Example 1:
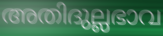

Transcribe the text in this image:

അതിദുല്ലഭാവ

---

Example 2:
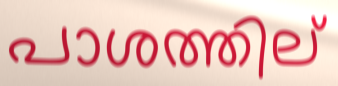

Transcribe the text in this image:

പാശത്തില്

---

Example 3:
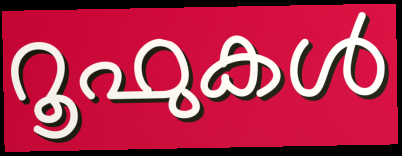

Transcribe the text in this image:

റൂഫുകൾ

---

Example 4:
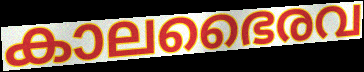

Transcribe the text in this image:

കാലഭൈരവ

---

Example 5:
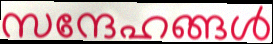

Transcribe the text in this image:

സന്ദേഹങ്ങൾ